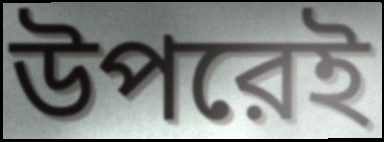
উপরেই